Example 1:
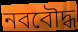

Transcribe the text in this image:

নববৌদ্ধ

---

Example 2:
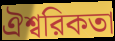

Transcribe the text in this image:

ঐশ্বরিকতা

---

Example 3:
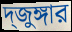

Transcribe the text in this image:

দ্জুঙ্গার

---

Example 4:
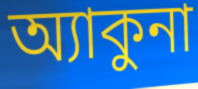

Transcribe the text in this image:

অ্যাকুনা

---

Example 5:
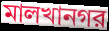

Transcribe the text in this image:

মালখানগর